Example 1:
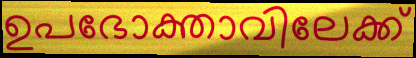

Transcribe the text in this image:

ഉപഭോക്താവിലേക്ക്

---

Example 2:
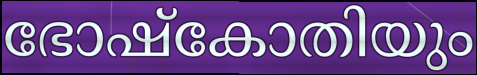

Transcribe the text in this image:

ഭോഷ്കോതിയും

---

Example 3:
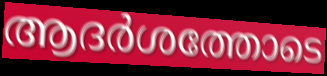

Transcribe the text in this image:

ആദർശത്തോടെ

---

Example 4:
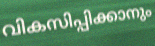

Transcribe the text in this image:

വികസിപ്പിക്കാനും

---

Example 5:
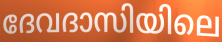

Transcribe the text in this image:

ദേവദാസിയിലെ